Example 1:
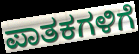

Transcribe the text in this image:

ಪಾತಕಗಳಿಗೆ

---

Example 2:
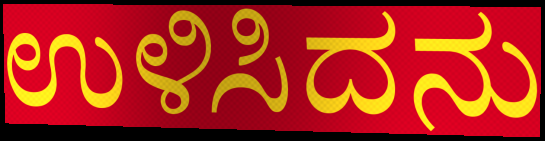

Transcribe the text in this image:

ಉಳಿಸಿದನು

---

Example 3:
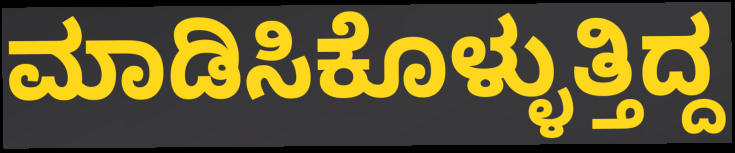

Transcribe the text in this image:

ಮಾಡಿಸಿಕೊಳ್ಳುತ್ತಿದ್ದ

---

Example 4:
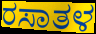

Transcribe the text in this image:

ರಸಾತಳ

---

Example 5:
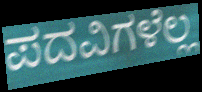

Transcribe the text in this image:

ಪದವಿಗಳೆಲ್ಲ